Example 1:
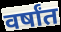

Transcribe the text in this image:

वर्षांत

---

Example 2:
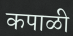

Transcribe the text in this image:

कपाळी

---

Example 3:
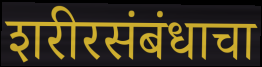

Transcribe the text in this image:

शरीरसंबंधाचा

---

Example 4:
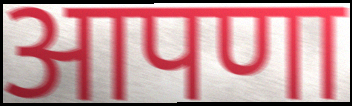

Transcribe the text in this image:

आपणा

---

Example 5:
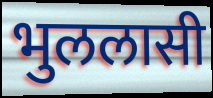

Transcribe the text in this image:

भुललासी